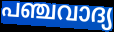
പഞ്ചവാദ്യ